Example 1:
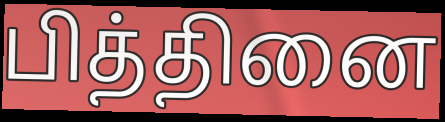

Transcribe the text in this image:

பித்தினை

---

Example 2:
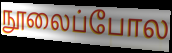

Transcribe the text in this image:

நூலைப்போல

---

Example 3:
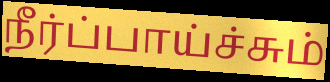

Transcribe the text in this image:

நீர்ப்பாய்ச்சும்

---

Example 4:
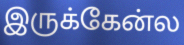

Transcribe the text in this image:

இருக்கேன்ல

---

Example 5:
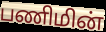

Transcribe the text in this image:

பணிமின்